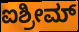
ಐಶ್ರೀಮ್